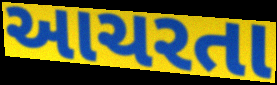
આચરતા